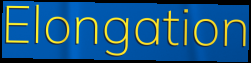
Elongation